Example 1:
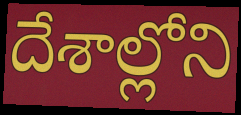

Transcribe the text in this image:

దేశాల్లోని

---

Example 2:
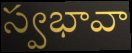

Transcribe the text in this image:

స్వభావా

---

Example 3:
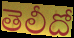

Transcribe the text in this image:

తెలీదో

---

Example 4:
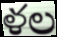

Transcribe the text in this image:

ళల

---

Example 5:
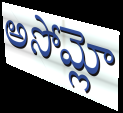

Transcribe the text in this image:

అసోమ్లో